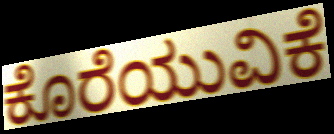
ಕೊರೆಯುವಿಕೆ